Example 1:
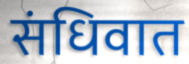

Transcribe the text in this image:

संधिवात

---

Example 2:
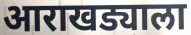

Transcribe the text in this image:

आराखड्याला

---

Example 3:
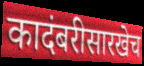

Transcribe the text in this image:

कादंबरीसारखेच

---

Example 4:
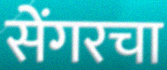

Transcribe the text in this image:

सेंगरचा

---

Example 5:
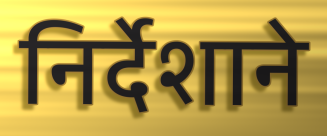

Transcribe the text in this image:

निर्देशाने